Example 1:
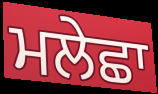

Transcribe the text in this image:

ਮਲੇਛਾ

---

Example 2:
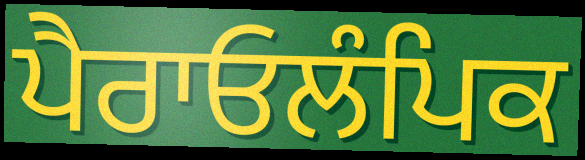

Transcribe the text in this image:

ਪੈਰਾਓਲੰਪਿਕ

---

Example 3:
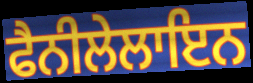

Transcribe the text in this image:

ਫੈਨੀਲੇਲਾਇਨ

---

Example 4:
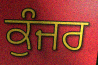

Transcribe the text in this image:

ਕੁੰਜਰ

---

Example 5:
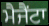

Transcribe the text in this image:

ਮੈਜੈਂਟਾ